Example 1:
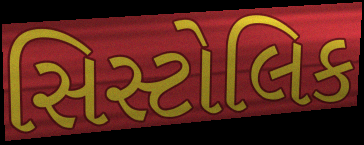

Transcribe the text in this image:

સિસ્ટોલિક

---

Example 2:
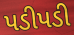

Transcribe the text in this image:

પડીપડી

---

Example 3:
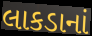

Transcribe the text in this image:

લાકડાનાં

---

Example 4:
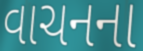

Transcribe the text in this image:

વાચનના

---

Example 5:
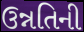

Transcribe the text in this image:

ઉન્નતિની